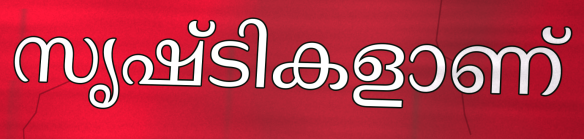
സൃഷ്ടികളാണ്